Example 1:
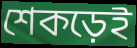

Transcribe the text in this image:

শেকড়েই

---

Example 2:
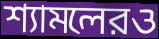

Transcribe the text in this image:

শ্যামলেরও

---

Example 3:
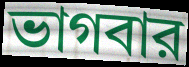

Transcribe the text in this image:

ভাগবার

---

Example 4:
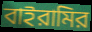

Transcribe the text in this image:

বাইরামির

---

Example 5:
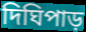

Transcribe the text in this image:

দিঘিপাড়